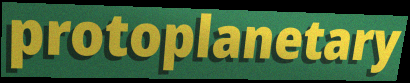
protoplanetary